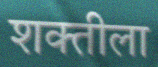
शक्तीला